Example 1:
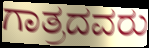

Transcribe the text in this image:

ಗಾತ್ರದವರು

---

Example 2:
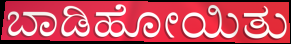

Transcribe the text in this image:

ಬಾಡಿಹೋಯಿತು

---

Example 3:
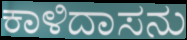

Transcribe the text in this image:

ಕಾಳಿದಾಸನು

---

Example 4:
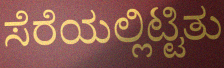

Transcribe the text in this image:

ಸೆರೆಯಲ್ಲಿಟ್ಟಿತು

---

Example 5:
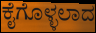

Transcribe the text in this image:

ಕೈಗೊಳ್ಳಲಾದ